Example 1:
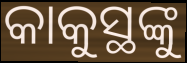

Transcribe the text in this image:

କାକୁସ୍ଥଙ୍କୁ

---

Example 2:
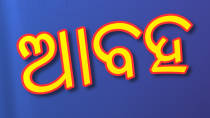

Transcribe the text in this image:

ଆବହ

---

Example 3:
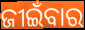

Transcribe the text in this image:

ଜୀଇଁବାର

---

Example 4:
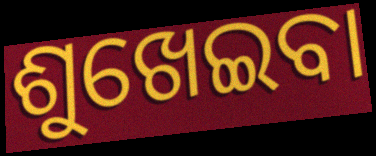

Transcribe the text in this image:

ଶୁଖେଇବା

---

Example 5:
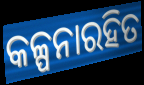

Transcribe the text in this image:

କଳ୍ପନାରହିତ